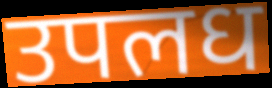
उपलध